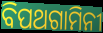
ବିପଥଗାମିନୀ